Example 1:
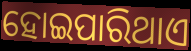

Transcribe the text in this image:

ହୋଇପାରିଥାଏ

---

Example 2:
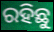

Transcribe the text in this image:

ରହିଛୁ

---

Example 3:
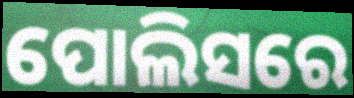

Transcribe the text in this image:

ପୋଲିସରେ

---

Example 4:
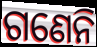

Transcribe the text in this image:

ଗଣେନି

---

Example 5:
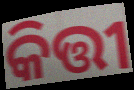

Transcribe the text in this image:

କିତ୍ତୀ